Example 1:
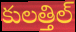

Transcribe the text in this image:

కులత్తిల్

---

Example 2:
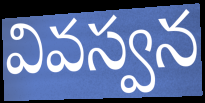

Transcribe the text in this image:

వివస్వన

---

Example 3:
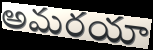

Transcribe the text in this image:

అమరయా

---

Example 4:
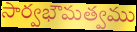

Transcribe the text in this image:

సార్వభౌమత్వము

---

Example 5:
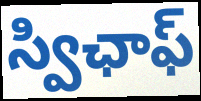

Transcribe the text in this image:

స్విఛాఫ్